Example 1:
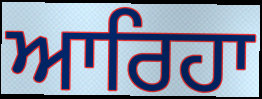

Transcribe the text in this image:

ਆਰਿਹਾ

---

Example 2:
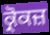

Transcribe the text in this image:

ਕ੍ਰੋਕਜ਼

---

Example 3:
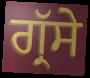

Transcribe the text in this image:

ਗ੍ਰੱਸੇ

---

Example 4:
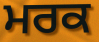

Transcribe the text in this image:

ਮਰਕ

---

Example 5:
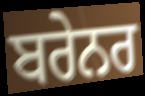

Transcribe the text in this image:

ਬਰੇਨਰ